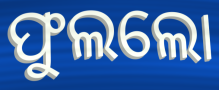
ଫୁଲଲୋ